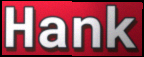
Hank